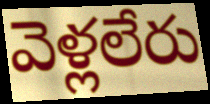
వెళ్లలేరు